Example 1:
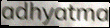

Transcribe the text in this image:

adhyatma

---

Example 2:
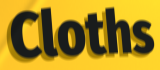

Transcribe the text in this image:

Cloths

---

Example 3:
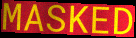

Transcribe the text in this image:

MASKED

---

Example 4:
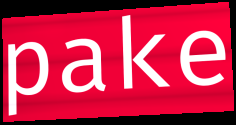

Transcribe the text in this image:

pake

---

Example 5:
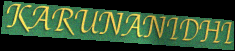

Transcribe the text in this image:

KARUNANIDHI